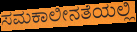
ಸಮಕಾಲೀನತೆಯಲ್ಲಿ